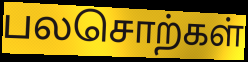
பலசொற்கள்